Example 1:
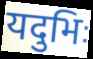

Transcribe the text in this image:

यदुभिः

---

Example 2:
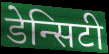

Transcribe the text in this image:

डेन्सिटी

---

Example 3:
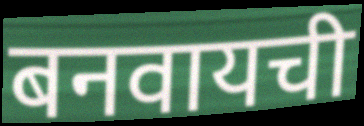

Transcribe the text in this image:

बनवायची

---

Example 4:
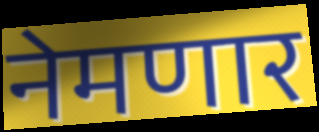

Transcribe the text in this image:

नेमणार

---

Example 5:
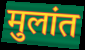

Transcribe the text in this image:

मुलांत